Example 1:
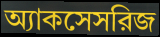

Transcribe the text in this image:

অ্যাকসেসরিজ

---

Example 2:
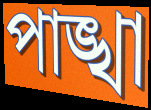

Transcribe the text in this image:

পাঙ্খা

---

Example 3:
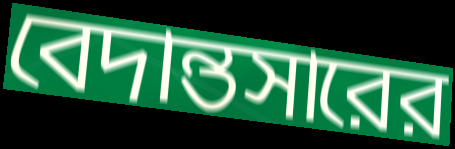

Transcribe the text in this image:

বেদান্তসারের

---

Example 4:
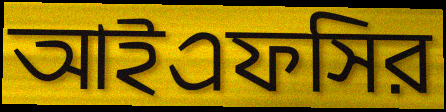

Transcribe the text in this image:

আইএফসির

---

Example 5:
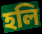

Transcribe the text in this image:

হলি